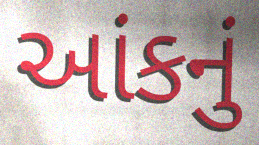
આંકનું